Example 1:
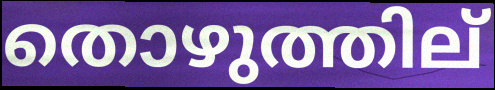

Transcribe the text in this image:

തൊഴുത്തില്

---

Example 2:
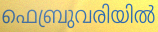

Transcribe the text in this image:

ഫെബ്രുവരിയിൽ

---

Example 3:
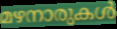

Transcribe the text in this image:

മഴനാരുകൾ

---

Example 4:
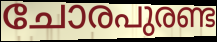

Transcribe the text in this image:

ചോരപുരണ്ട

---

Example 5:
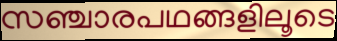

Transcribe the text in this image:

സഞ്ചാരപഥങ്ങളിലൂടെ